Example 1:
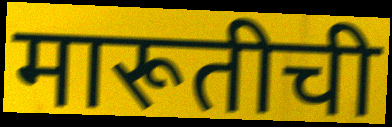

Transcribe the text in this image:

मारूतीची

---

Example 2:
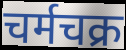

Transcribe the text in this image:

चर्मचक्र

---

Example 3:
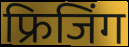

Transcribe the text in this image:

फ्रिजिंग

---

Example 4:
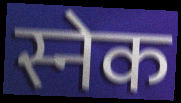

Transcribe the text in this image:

स्‍नेक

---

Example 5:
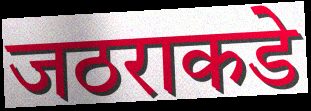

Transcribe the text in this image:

जठराकडे